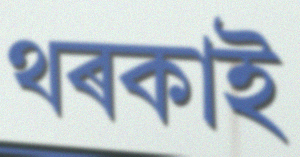
থৰকাই